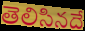
తెలిసినదే